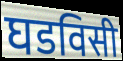
घडविसी